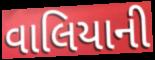
વાલિયાની